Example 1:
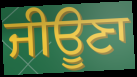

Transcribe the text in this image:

ਜੀਊਣਾ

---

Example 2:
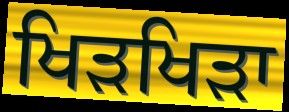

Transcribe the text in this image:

ਖਿੜਖਿੜਾ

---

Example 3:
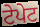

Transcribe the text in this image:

ਟੇਪੇਟ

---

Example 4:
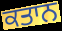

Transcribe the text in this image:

ਕਤਾਨ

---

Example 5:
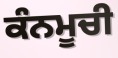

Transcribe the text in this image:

ਕੰਨਮੂਚੀ